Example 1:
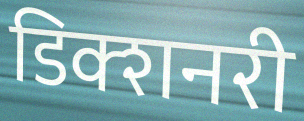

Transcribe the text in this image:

डिक्शनरी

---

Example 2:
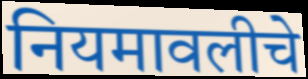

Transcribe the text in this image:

नियमावलीचे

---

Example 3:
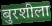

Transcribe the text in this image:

बुरशीला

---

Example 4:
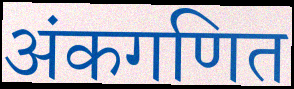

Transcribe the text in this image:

अंकगणित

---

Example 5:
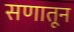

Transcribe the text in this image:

सणातून